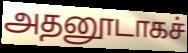
அதனூடாகச்